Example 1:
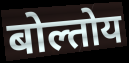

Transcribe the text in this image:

बोल्तोय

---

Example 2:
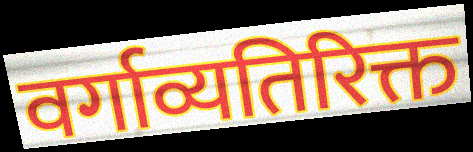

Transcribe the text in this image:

वर्गाव्यतिरिक्त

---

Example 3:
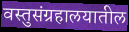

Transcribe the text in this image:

वस्तुसंग्रहालयातील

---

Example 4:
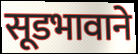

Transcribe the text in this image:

सूडभावाने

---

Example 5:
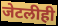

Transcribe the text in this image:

जेटलीही